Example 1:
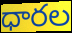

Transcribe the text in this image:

ధారల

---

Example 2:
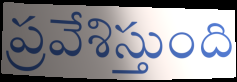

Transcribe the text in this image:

ప్రవేశిస్తుంది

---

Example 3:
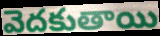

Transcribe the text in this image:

వెదకుతాయి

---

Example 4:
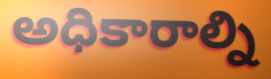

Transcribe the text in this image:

అధికారాల్ని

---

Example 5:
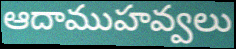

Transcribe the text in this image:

ఆదాముహవ్వలు